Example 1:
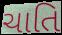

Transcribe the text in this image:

ચાતિ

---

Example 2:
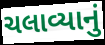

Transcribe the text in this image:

ચલાવ્યાનું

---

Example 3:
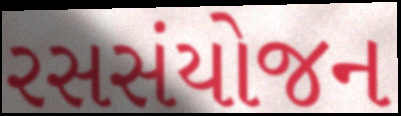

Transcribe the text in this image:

રસસંયોજન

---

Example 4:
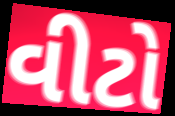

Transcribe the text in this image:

વીટો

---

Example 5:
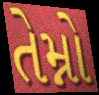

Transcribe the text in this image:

તેમ્નો